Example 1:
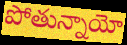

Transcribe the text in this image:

పోతున్నాయో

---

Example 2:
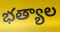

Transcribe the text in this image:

భత్యాల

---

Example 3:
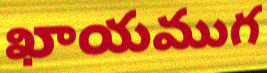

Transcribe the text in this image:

ఖాయముగ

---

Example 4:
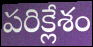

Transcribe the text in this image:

పరిక్లేశం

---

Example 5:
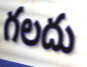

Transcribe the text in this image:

గలదు